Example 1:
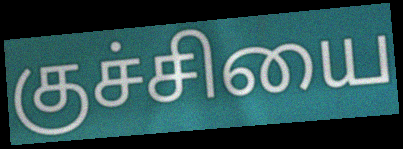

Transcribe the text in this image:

குச்சியை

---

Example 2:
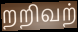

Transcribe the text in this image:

றறிவற்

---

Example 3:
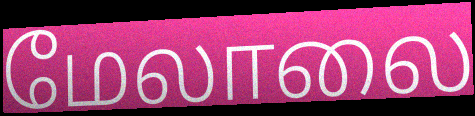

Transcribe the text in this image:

மேலாலை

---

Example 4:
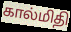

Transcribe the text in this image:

கால்மிதி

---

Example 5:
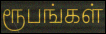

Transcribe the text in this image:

ரூபங்கள்